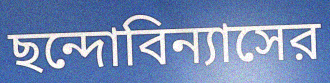
ছন্দোবিন্যাসের